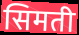
सिमती